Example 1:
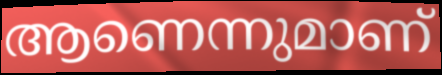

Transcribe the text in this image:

ആണെന്നുമാണ്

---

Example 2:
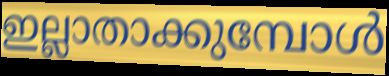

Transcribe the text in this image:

ഇല്ലാതാക്കുമ്പോൾ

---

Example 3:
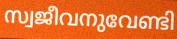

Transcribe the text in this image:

സ്വജീവനുവേണ്ടി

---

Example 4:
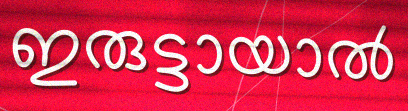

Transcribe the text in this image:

ഇരുട്ടായാൽ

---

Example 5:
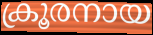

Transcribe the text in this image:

ക്രൂരനായ